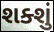
શક્શું